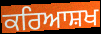
ਕਰਿਆਸ਼ਖ